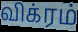
விக்ரம்